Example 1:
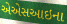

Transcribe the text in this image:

એએસઆઇના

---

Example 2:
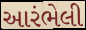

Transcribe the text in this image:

આરંભેલી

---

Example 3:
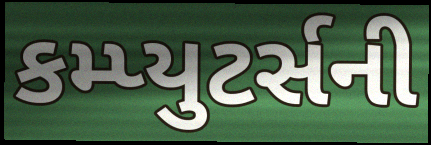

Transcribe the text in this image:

કમ્પ્યુટર્સની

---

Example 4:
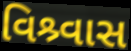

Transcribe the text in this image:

વિશ્ર્વાસ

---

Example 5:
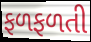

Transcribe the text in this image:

ફળફળતી